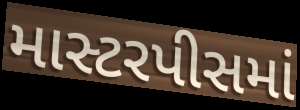
માસ્ટરપીસમાં